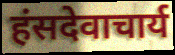
हंसदेवाचार्य